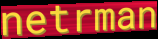
netrman